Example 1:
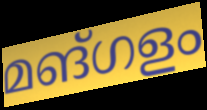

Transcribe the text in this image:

മങ്ഗളം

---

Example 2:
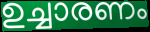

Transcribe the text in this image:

ഉച്ചാരണം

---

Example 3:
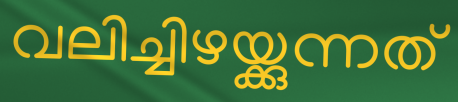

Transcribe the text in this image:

വലിച്ചിഴയ്ക്കുന്നത്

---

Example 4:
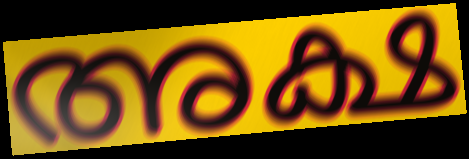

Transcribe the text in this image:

അക്ഷ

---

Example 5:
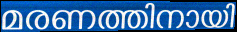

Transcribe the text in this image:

മരണത്തിനായി